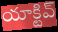
యాక్టివ్